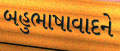
બહુભાષાવાદને